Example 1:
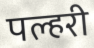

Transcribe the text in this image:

पल्हरी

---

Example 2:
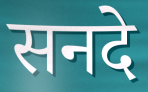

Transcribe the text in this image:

सनदे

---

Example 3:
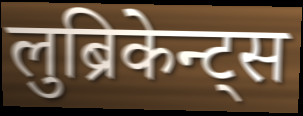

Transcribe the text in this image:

लुब्रिकेन्ट्स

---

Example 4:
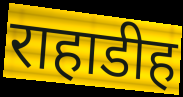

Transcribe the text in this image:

राहाडीह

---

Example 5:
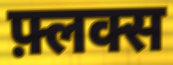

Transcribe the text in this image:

फ़्लक्स